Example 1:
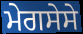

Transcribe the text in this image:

ਮੇਗਸੇਸੇ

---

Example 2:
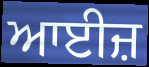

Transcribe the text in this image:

ਆਈਜ਼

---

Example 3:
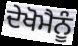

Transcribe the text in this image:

ਦੇਖੋਮੈਨੂੰ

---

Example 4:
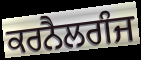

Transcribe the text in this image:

ਕਰਨੈਲਗੰਜ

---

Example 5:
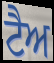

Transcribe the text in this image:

ਟੈਅ